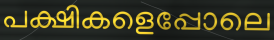
പക്ഷികളെപ്പോലെ